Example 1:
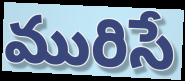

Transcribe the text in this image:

మురిసే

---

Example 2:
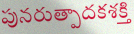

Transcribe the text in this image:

పునరుత్పాదకశక్తి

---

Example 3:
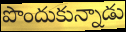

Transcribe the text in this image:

పొందుకున్నాడు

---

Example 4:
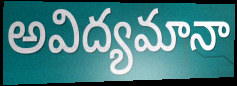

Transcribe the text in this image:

అవిద్యమానా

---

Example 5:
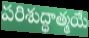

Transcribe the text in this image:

పరిశుద్ధాత్మయే